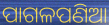
ପାଗଳପଣିଆ